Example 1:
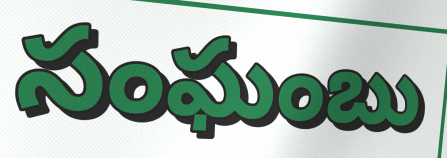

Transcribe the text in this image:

సంఘంబు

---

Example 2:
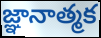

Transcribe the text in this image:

జ్ఞానాత్మక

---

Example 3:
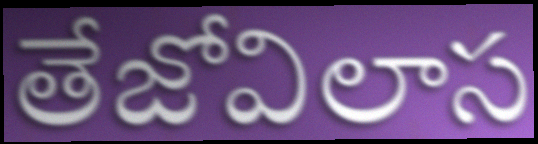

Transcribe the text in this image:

తేజోవిలాస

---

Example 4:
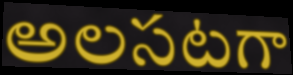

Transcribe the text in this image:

అలసటగా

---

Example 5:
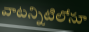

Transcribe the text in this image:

వాటన్నిటిలోనూ